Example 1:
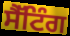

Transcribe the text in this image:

ਸੈੱਟਿੰਗ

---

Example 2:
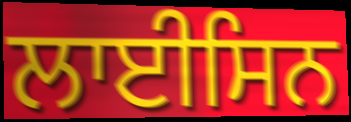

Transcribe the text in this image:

ਲਾਈਸਿਨ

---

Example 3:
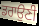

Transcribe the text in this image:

ਡਰਾਉਣੀ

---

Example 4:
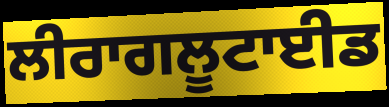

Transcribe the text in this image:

ਲੀਰਾਗਲੂਟਾਈਡ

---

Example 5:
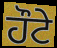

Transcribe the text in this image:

ਹੌਟੇ